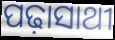
ପଢ଼ାସାଥୀ